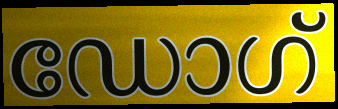
ഡോഗ്